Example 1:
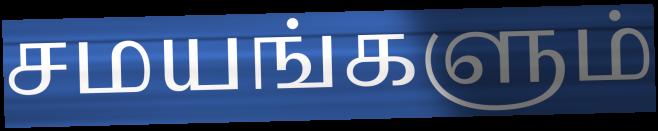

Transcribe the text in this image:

சமயங்களும்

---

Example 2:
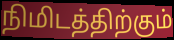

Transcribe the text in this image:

நிமிடத்திற்கும்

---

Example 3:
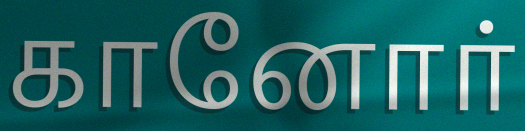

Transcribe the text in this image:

கானோர்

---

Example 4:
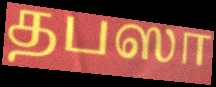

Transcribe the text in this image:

தபஸா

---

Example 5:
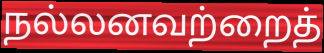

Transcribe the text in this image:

நல்லனவற்றைத்